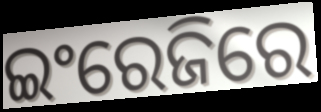
ଇଂରେଜିରେ